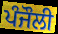
ਪੰਜੌਲੀ